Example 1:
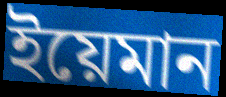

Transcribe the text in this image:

ইয়েমান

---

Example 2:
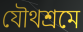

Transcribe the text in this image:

যৌথশ্রমে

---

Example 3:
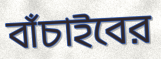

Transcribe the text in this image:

বাঁচাইবের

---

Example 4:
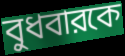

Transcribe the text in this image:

বুধবারকে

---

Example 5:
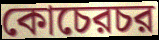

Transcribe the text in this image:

কোচেরচর